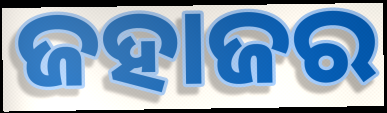
ଜହାଜର